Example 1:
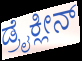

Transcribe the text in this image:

ಡ್ರೈಕ್ಲೀನ್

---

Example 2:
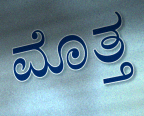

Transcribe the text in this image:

ಮೊತ್ತ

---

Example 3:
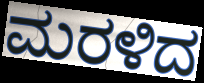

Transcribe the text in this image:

ಮರಳಿದ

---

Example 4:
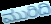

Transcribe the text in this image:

ಮುರಿದಿ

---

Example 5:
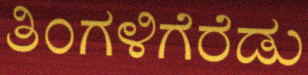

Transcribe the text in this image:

ತಿಂಗಳಿಗೆರೆಡು